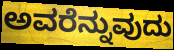
ಅವರೆನ್ನುವುದು